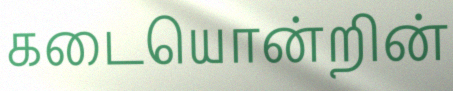
கடையொன்றின்